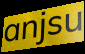
anjsu